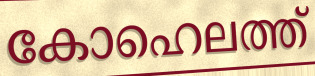
കോഹെലത്ത്